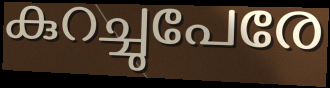
കുറച്ചുപേരേ